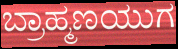
ಬ್ರಾಹ್ಮಣಯುಗ